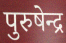
पुरुषेन्द्र